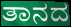
ತಾನದ